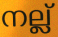
നല്ല്